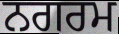
ਨਗਰਮ